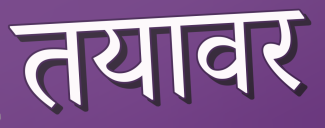
तयावर